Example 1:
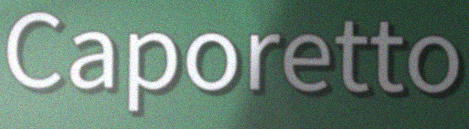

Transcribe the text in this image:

Caporetto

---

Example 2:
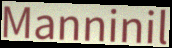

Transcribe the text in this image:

Manninil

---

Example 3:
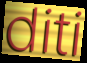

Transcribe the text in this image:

diti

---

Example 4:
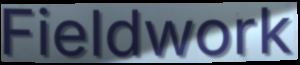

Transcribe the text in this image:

Fieldwork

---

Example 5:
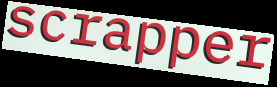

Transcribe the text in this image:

scrapper